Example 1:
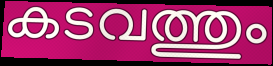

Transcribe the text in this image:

കടവത്തും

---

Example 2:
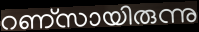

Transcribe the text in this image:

റണ്സായിരുന്നു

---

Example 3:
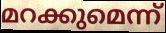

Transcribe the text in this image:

മറക്കുമെന്ന്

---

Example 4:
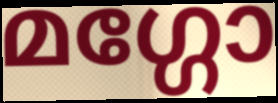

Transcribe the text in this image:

മഗ്ഗോ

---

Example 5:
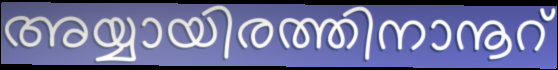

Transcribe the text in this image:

അയ്യായിരത്തിനാനൂറ്